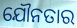
ଯୌନତାର